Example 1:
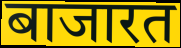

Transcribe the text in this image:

बाजारत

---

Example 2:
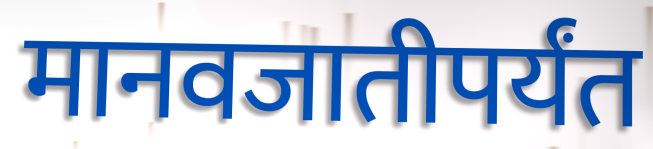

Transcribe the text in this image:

मानवजातीपर्यंत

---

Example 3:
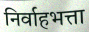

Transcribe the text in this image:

निर्वाहभत्ता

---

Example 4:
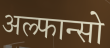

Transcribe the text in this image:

अल्फान्सो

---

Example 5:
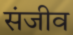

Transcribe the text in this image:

संजीव